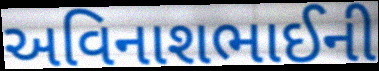
અવિનાશભાઈની